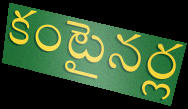
కంటైనర్ల